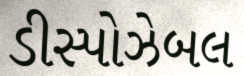
ડીસ્પોઝેબલ